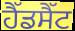
ਹੈੱਡਸੈੱਟ